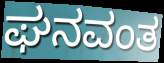
ಘನವಂತ